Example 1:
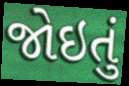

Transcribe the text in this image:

જોઇતું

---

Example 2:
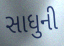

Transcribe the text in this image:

સાધુની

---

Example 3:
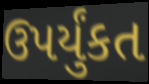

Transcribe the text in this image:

ઉપર્યુંકત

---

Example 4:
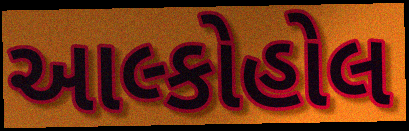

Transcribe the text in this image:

આલ્કોહોલ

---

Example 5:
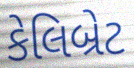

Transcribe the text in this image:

કેલિબ્રેટ